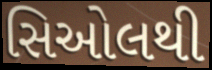
સિઓલથી